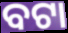
ବଟା